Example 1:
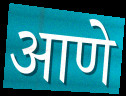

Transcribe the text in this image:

आणे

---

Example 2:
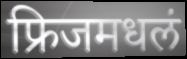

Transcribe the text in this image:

फ्रिजमधलं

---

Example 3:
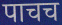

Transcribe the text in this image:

पाचच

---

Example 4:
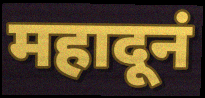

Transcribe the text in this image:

महादूनं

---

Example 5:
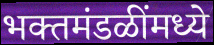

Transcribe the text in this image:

भक्तमंडळींमध्ये